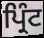
ਪ੍ਰਿੰਟ